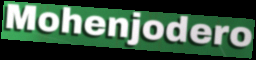
Mohenjodero